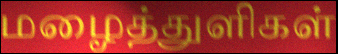
மழைத்துளிகள்